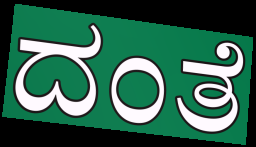
ದಂತೆ